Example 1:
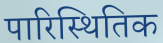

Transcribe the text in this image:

पारिस्थितिक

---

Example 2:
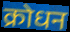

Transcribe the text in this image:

क्रोधन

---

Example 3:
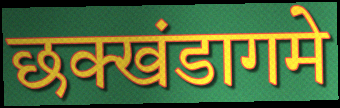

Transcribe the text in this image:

छक्खंडागमे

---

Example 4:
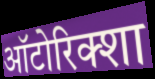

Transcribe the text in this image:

ऑटोरिक्‍शा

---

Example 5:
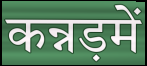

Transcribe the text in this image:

कन्नड़में